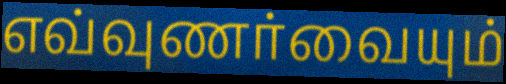
எவ்வுணர்வையும்